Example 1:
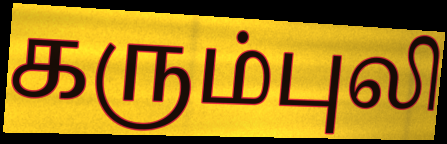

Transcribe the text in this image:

கரும்புலி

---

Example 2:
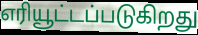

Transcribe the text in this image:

எரியூட்டப்படுகிறது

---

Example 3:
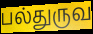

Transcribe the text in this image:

பல்துருவ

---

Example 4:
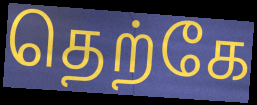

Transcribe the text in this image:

தெற்கே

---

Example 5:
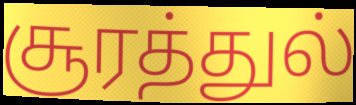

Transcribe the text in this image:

சூரத்துல்